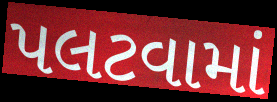
પલટવામાં